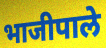
भाजीपाले